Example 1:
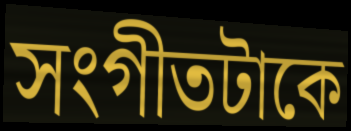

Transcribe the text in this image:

সংগীতটাকে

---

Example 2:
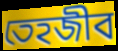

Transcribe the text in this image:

তেহজীব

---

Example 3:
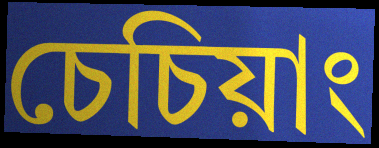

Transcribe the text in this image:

চেচিয়াং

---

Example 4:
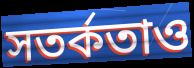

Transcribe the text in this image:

সতর্কতাও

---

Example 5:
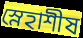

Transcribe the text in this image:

স্নেহাশীষ